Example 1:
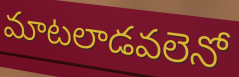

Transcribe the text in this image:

మాటలాడవలెనో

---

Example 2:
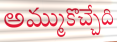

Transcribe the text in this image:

అమ్ముకొచ్చేది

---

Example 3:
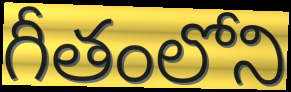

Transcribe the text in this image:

గీతంలోని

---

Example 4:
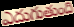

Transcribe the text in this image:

ఎదుగుతుంది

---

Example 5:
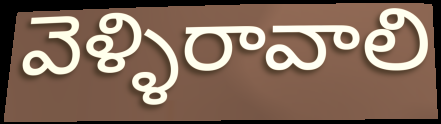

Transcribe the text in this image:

వెళ్ళిరావాలి